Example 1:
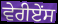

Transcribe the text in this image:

ਵੇਰੀਏਂਸ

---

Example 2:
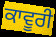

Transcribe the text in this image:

ਕਾਵੂਰੀ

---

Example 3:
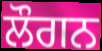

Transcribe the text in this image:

ਲੌਗਨ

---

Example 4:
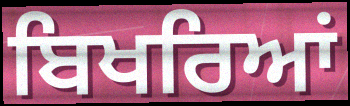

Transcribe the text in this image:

ਬਿਖਰਿਆਂ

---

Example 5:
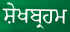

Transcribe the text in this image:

ਸ਼ੇਖਬ੍ਰਹਮ